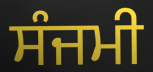
ਸੰਜਮੀ